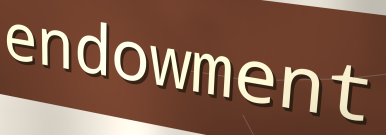
endowment